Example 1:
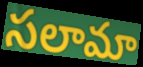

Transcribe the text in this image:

సలామా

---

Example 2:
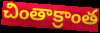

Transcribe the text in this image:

చింతాక్రాంత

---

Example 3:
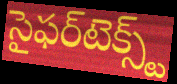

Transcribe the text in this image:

సైఫర్‌టెక్స్ట్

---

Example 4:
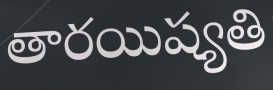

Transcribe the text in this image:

తారయిష్యతి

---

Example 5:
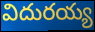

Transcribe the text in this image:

విదురయ్య